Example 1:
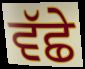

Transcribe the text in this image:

ਵੱਛੇ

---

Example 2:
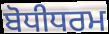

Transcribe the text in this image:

ਬੋਧੀਧਰਮ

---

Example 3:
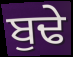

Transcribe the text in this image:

ਬੁਢੇ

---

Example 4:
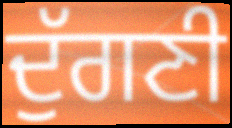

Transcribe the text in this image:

ਦੁੱਗਣੀ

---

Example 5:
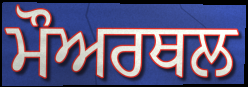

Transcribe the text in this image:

ਮੌਅਰਥਲ